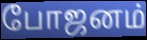
போஜனம்